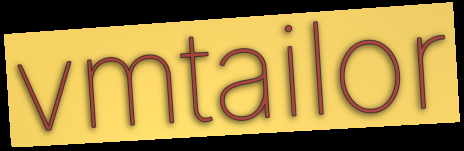
vmtailor